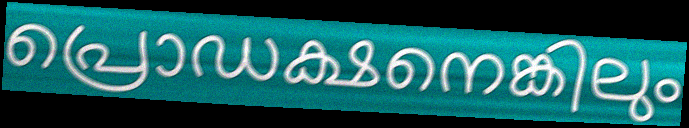
പ്രൊഡക്ഷനെങ്കിലും